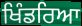
ਖਿੰਡਰਿਆ